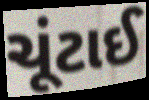
ચૂંટાઈ